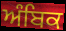
ਅੰਬਿਕ